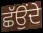
ਛੱਉਂਦੇ